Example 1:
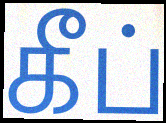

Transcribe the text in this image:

கீப்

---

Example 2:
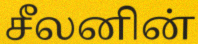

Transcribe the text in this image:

சீலனின்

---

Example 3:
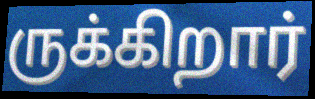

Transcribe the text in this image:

ருக்கிறார்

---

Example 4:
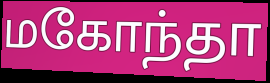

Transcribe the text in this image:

மகோந்தா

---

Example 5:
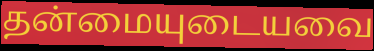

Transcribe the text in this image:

தன்மையுடையவை